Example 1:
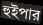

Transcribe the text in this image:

হুইপার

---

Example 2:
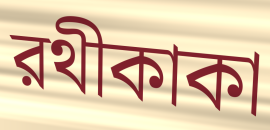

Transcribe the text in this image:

রথীকাকা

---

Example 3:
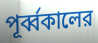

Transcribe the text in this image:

পূর্ব্বকালের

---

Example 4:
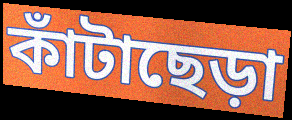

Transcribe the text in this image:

কাঁটাছেড়া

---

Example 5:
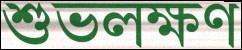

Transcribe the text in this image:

শুভলক্ষণ